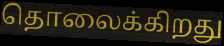
தொலைக்கிறது